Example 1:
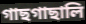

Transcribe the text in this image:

গাছগাছালি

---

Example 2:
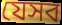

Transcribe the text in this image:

যেসব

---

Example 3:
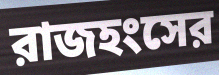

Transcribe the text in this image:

রাজহংসের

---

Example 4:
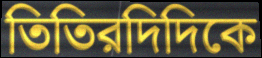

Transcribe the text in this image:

তিতিরদিদিকে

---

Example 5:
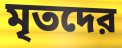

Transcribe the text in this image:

মৃতদের